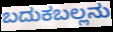
ಬದುಕಬಲ್ಲನು